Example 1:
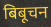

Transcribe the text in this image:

बिबूचन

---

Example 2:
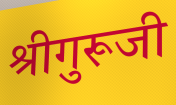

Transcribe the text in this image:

श्रीगुरूजी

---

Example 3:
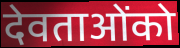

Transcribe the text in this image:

देवताओंको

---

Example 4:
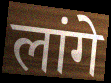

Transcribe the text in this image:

लांगे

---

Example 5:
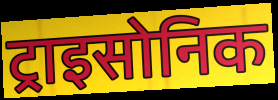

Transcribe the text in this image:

ट्राइसोनिक